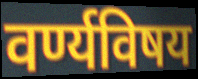
वर्ण्यविषय